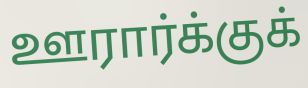
ஊரார்க்குக்